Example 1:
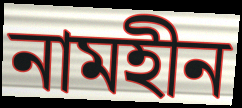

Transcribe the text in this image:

নামহীন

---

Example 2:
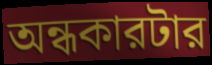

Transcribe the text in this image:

অন্ধকারটার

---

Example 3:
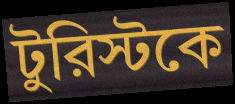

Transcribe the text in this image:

টুরিস্টকে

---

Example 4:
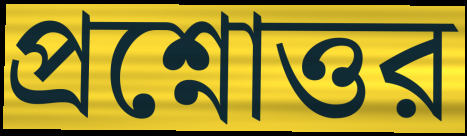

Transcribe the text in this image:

প্রশ্নোত্তর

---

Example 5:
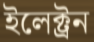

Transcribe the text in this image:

ইলেক্ট্রন